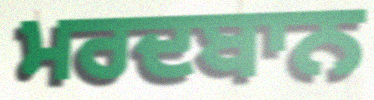
ਮਰਦਬਾਨ